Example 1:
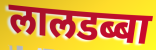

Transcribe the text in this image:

लालडब्बा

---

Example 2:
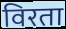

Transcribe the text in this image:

विरता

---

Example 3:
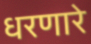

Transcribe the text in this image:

धरणारे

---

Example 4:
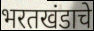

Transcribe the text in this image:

भरतखंडाचे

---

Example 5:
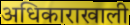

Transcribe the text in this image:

अधिकाराखाली